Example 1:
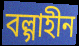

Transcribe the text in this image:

বল্গাহীন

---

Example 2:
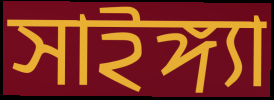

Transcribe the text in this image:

সাইঙ্গ্যা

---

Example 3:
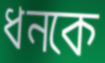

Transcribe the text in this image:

ধনকে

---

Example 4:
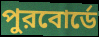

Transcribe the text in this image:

পুরবোর্ডে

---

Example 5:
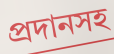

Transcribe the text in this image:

প্রদানসহ